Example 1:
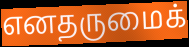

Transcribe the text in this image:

எனதருமைக்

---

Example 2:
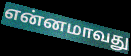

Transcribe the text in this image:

என்னமாவது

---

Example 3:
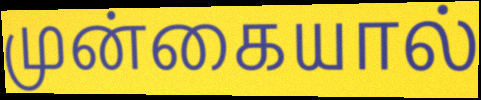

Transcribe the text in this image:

முன்கையால்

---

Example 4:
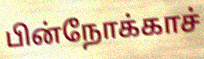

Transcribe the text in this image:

பின்நோக்காச்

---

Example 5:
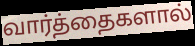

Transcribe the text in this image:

வார்த்தைகளால்